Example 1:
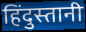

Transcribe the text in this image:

हिंदुस्तानी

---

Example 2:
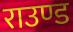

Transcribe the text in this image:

राउण्ड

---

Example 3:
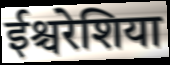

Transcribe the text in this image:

ईश्चरेशिया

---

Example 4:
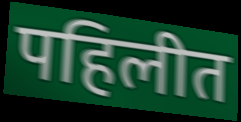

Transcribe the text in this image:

पहिलीत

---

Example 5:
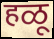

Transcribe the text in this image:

हळू